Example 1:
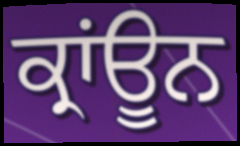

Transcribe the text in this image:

ਕ੍ਰਾਂਊਨ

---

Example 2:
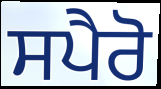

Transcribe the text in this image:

ਸਪੈਰੋ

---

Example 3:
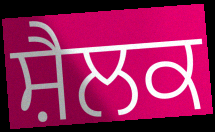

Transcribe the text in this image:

ਸ਼ੈਲਕ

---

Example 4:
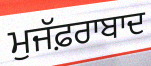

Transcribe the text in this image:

ਮੁਜੱਫ਼ਰਾਬਾਦ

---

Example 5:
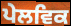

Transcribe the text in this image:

ਪੇਲਵਿਕ